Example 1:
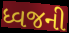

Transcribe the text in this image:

ધ્વજની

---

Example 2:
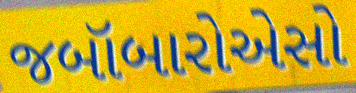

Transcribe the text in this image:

જબૉબારોએસો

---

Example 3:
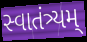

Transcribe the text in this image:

સ્વાતંત્ર્યમ્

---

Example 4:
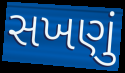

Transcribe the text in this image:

સખણું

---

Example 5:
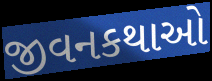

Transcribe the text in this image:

જીવનકથાઓ